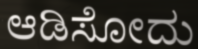
ಆಡಿಸೋದು